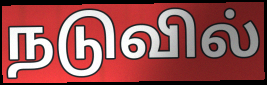
நடுவில்